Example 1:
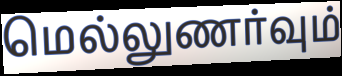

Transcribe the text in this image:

மெல்லுணர்வும்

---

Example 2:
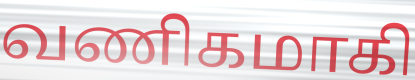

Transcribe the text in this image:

வணிகமாகி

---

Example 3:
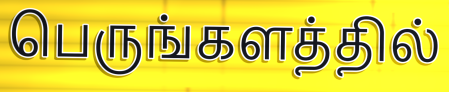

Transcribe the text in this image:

பெருங்களத்தில்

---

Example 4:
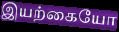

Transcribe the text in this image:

இயற்கையோ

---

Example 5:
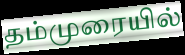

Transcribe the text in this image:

தம்முரையில்